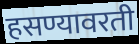
हसण्यावरती